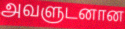
அவளுடனான